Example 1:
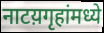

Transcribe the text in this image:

नाटय़गृहांमध्ये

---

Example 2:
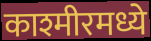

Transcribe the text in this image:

काश्मीरमध्ये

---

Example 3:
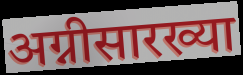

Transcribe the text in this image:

अग्नीसारख्या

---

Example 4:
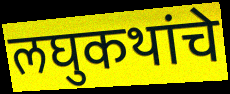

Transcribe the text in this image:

लघुकथांचे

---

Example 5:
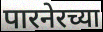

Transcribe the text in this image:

पारनेरच्या